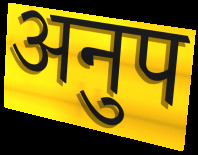
अनुप